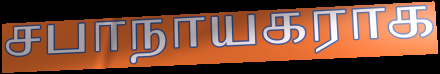
சபாநாயகராக